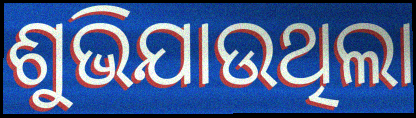
ଶୁଭିଯାଉଥିଲା